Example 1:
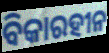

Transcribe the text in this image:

ବିକାରହୀନ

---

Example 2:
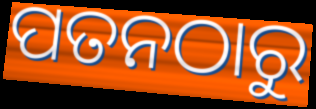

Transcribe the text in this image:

ପତନଠାରୁ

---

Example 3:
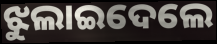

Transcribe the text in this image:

ଝୁଲାଇଦେଲେ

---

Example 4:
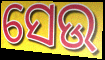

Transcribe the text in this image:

ସେଉ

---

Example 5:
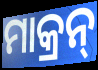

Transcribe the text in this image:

ମାକ୍ରନ୍